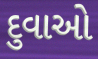
દુવાઓ